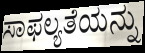
ಸಾಫಲ್ಯತೆಯನ್ನು